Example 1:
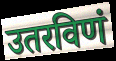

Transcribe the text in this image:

उतरविणं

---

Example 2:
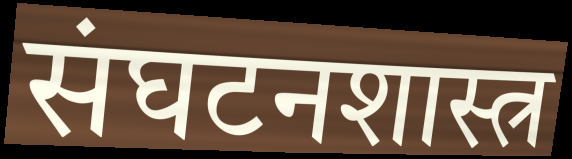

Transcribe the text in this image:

संघटनशास्त्र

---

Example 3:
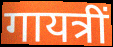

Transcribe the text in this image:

गायत्रीं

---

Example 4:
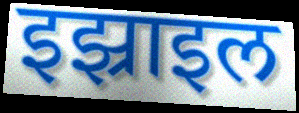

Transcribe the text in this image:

इझ्राइल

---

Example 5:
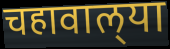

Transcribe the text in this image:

चहावाल्या